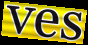
ves